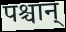
पश्चान्